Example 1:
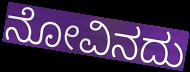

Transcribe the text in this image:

ನೋವಿನದು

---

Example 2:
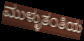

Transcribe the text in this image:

ಮುಳ್ಳುತಂತಿಯ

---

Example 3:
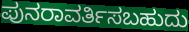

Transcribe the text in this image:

ಪುನರಾವರ್ತಿಸಬಹುದು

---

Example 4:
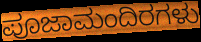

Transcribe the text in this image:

ಪೂಜಾಮಂದಿರಗಳು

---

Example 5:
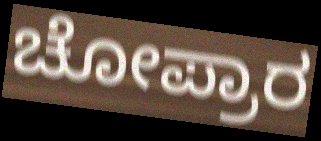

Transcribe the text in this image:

ಚೋಪ್ರಾರ